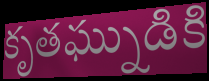
కృతఘ్నుడికి